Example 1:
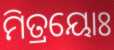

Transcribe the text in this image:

ମିତ୍ରୟୋଃ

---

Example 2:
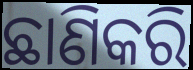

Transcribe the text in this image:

ଛାଣିକରି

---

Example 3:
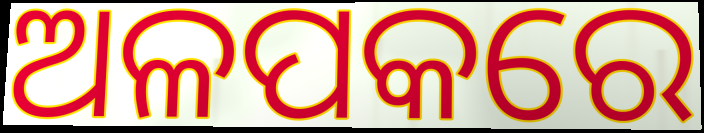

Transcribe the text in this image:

ଅଳପକରେ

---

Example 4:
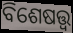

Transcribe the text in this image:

ବିଶେଷତ୍ତ୍ୱ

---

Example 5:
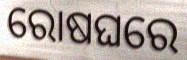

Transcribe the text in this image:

ରୋଷଘରେ